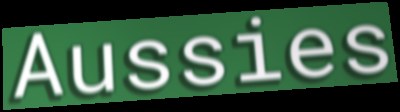
Aussies